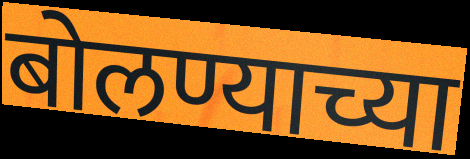
बोलण्याच्या